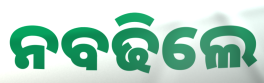
ନବଢିଲେ